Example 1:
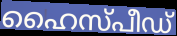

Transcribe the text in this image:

ഹൈസ്പീഡ്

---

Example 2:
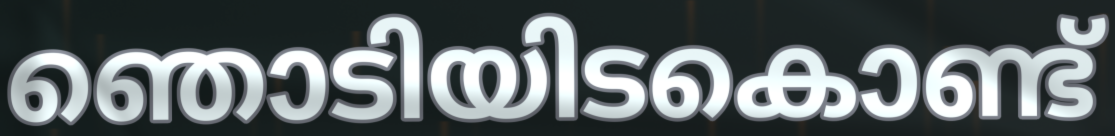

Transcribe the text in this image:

ഞൊടിയിടകൊണ്ട്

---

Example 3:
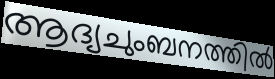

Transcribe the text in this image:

ആദ്യചുംബനത്തിൽ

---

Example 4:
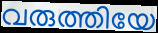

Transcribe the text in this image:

വരുത്തിയേ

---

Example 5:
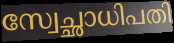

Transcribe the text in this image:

സ്വേച്ഛാധിപതി